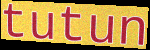
tutun